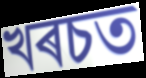
খৰচত